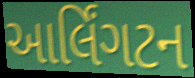
આર્લિંગટન